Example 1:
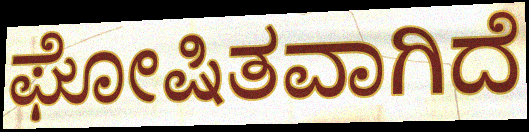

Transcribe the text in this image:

ಘೋಷಿತವಾಗಿದೆ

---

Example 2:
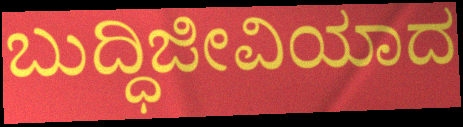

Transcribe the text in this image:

ಬುದ್ಧಿಜೀವಿಯಾದ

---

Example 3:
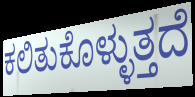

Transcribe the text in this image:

ಕಲಿತುಕೊಳ್ಳುತ್ತದೆ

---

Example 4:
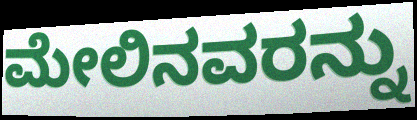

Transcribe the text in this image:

ಮೇಲಿನವರನ್ನು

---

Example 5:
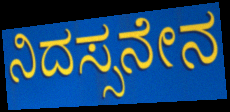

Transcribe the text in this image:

ನಿದಸ್ಸನೇನ